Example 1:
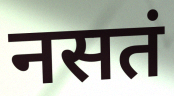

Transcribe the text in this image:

नसतं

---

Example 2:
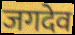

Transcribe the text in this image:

जगदेव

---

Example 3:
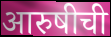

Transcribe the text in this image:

आरुषीची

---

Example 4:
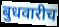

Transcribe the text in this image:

बुधवारीच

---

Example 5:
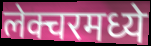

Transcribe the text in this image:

लेक्चरमध्ये